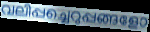
വലിപ്പച്ചെറുപ്പങ്ങളോ